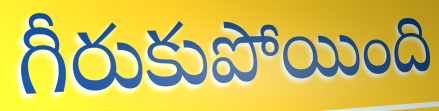
గీరుకుపోయింది